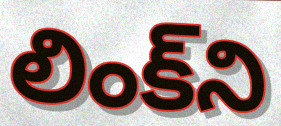
లింక్‌ని